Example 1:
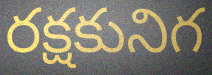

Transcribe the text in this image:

రక్షకునిగ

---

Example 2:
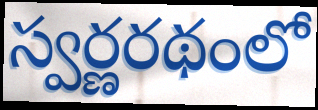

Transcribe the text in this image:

స్వర్ణరథంలో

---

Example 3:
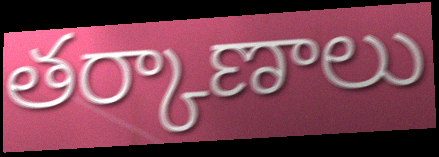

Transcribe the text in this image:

తర్కాణాలు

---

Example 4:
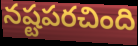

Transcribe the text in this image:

నష్టపరచింది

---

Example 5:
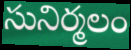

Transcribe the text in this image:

సునిర్మలం